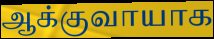
ஆக்குவாயாக